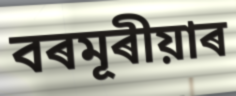
বৰমূৰীয়াৰ